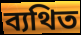
ব্যথিত